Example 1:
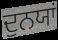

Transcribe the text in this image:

ਦੁਨਯਾਂ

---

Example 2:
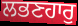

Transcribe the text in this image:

ਲਭਣਹਾਰੁ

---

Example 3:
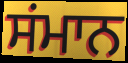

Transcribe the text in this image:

ਸਂਮਾਨ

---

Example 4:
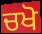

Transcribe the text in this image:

ਚਖੋ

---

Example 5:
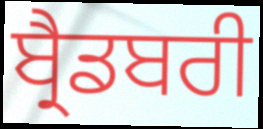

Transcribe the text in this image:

ਬ੍ਰੈਡਬਰੀ